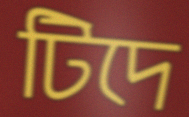
টিদে